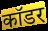
कॉडर